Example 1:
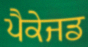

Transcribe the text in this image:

ਪੈਕੇਜਡ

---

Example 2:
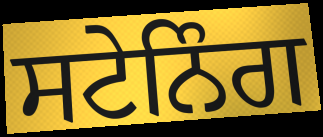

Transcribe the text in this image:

ਸਟੇਨਿੰਗ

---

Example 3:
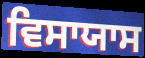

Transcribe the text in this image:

ਵਿਸਾਯਾਸ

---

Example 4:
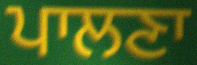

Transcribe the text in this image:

ਪਾਲਣਾ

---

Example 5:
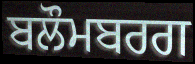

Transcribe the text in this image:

ਬਲੌਮਬਰਗ